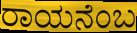
ರಾಯನೆಂಬ